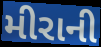
મીરાની